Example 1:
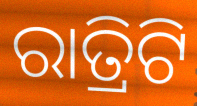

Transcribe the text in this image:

ରାତ୍ରିଟି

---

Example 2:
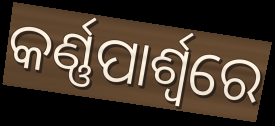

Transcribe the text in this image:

କର୍ଣ୍ଣପାର୍ଶ୍ୱରେ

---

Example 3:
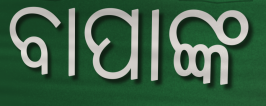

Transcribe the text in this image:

ବାପାଙ୍କ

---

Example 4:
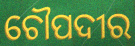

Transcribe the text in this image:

ଚୌପଦୀର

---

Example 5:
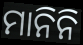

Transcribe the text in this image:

ମାନିନି